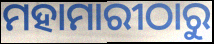
ମହାମାରୀଠାରୁ